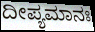
ದೀಪ್ಯಮಾನಃ